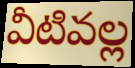
వీటివల్ల